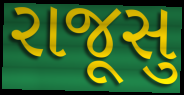
રાજૂસુ